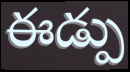
ఈడ్పు